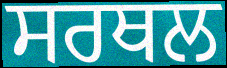
ਸਰਥਲ